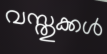
വസ്തുക്കൾ